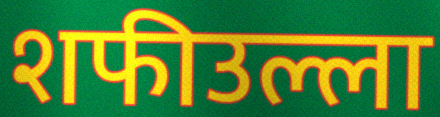
शफीउल्ला